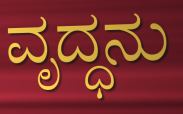
ವೃದ್ಧನು